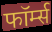
फॉर्म्स